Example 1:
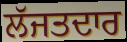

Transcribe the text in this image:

ਲੱਜਤਦਾਰ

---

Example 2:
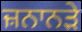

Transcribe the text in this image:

ਜ਼ਨਾਨੜੇ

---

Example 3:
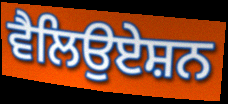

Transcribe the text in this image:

ਵੈਲਿਉਏਸ਼ਨ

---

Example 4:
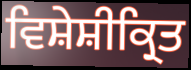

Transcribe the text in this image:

ਵਿਸ਼ੇਸ਼ੀਕ੍ਰਿਤ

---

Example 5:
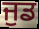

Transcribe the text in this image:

ਜੁਡ